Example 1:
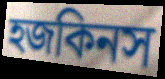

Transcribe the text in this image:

হজকিনস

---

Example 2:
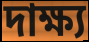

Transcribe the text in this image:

দাক্ষ্য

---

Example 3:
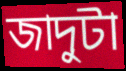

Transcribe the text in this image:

জাদুটা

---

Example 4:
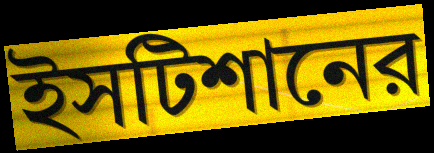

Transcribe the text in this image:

ইসটিশানের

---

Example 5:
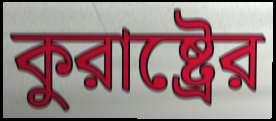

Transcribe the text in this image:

কুরাষ্ট্রের